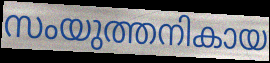
സംയുത്തനികായ